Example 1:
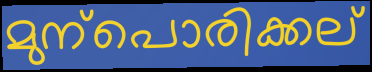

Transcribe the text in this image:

മുന്പൊരിക്കല്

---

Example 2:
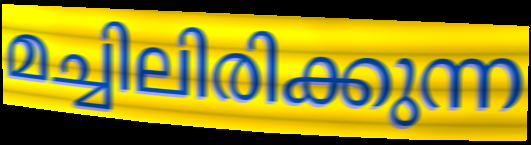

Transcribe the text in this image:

മച്ചിലിരിക്കുന്ന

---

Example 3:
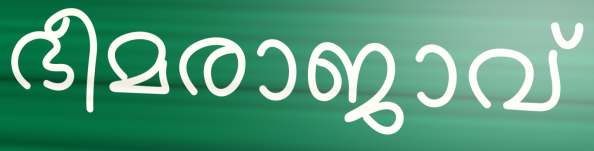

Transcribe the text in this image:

ഭീമരാജാവ്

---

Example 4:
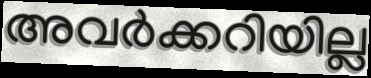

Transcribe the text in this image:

അവർക്കറിയില്ല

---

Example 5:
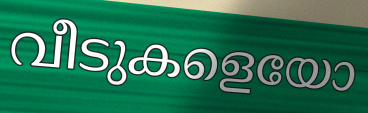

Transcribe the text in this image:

വീടുകളെയോ